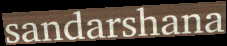
sandarshana